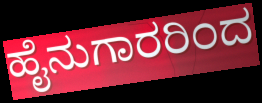
ಹೈನುಗಾರರಿಂದ